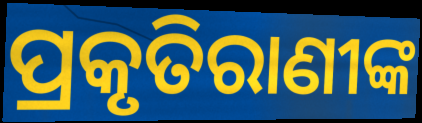
ପ୍ରକୃତିରାଣୀଙ୍କ